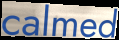
calmed